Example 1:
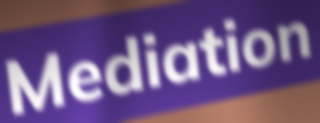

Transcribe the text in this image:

Mediation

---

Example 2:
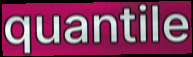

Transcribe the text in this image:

quantile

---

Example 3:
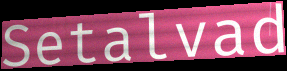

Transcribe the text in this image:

Setalvad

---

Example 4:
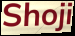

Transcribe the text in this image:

Shoji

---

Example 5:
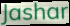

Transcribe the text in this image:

Jashar